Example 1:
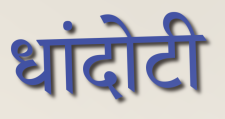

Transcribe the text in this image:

धांदोटी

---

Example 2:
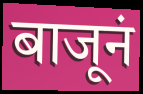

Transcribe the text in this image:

बाजूनं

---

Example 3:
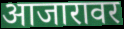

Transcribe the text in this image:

आजारावर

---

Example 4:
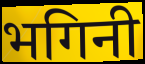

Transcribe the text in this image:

भगिनी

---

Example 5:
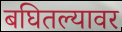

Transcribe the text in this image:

बघितल्यावर